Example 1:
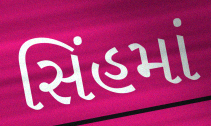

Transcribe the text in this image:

સિંહમાં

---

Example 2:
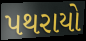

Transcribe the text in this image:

પથરાયો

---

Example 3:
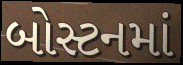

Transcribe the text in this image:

બોસ્ટનમાં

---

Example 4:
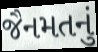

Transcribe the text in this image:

જૈનમતનું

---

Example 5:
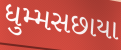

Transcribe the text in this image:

ધુમ્મસછાયા